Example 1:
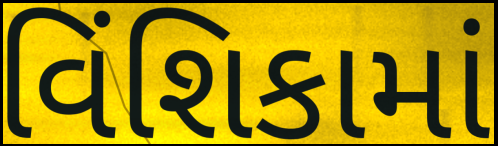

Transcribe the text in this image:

વિંશિકામાં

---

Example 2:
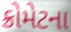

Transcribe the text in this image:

ક્રોમેટના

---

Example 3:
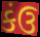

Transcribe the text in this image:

કંઉ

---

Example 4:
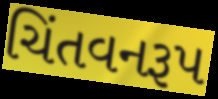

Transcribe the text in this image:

ચિંતવનરૂપ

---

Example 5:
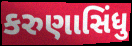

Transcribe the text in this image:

કરુણાસિંધુ